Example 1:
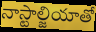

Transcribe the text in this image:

నాస్టాల్జియాతో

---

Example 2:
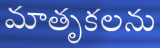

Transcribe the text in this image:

మాతృకలను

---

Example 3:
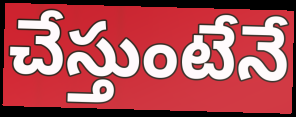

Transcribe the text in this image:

చేస్తుంటేనే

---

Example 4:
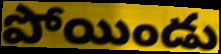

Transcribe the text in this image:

పోయిండు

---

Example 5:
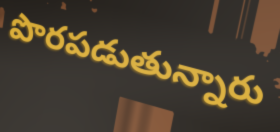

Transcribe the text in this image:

పొరపడుతున్నారు